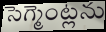
సెగ్మెంట్లను